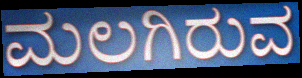
ಮಲಗಿರುವ